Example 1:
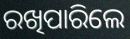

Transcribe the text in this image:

ରଖିପାରିଲେ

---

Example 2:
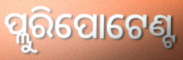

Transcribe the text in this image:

ପ୍ଲୁରିପୋଟେଣ୍ଟ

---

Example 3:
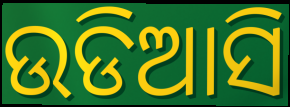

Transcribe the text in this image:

ଉଡିଆସି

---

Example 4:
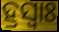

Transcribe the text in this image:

ହ୍ରସ୍ଵାଃ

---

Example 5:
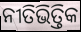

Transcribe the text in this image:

ନୀତିଭିତ୍ତିକ